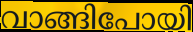
വാങ്ങിപോയി